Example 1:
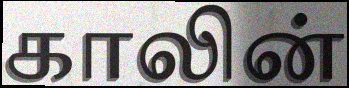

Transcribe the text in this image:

காலின்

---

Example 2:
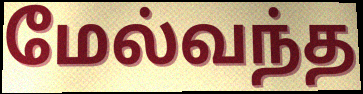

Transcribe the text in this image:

மேல்வந்த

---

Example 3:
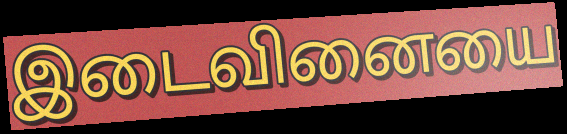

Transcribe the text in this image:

இடைவினையை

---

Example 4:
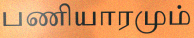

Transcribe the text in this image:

பணியாரமும்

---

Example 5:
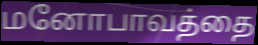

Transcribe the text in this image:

மனோபாவத்தை